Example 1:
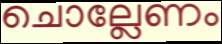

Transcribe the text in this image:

ചൊല്ലേണം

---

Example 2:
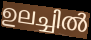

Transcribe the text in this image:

ഉലച്ചിൽ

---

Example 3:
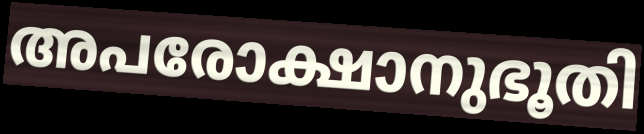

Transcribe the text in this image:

അപരോക്ഷാനുഭൂതി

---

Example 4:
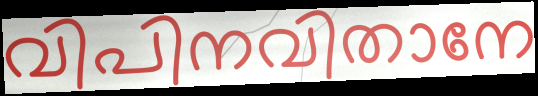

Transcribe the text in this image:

വിപിനവിതാനേ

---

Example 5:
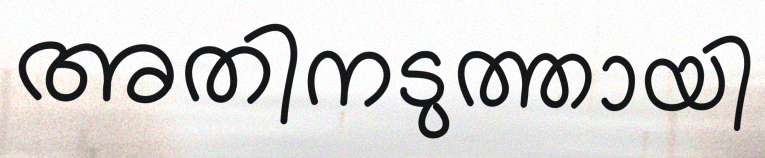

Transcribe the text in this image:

അതിനടുത്തായി